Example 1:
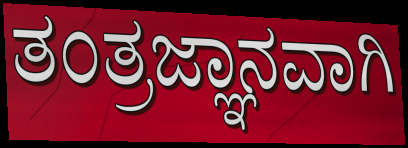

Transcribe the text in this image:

ತಂತ್ರಜ್ಞಾನವಾಗಿ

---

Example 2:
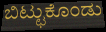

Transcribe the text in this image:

ಬಿಟ್ಟುಕೊಂಡು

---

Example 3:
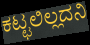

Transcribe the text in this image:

ಕಟ್ಟಲಿಲ್ಲದನಿ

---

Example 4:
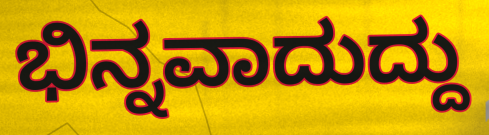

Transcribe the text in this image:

ಭಿನ್ನವಾದುದ್ದು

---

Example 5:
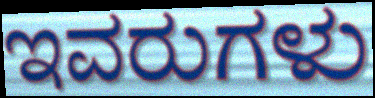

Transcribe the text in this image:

ಇವರುಗಳು